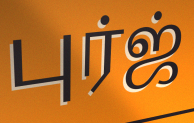
புர்ஜ்